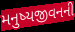
મનુષ્યજીવનની